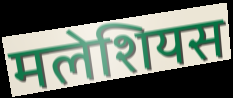
मलेशियस